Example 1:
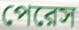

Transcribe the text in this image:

পেরেস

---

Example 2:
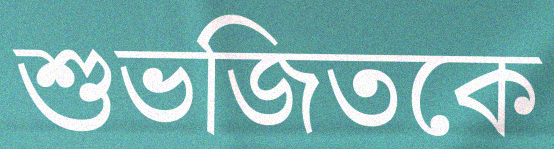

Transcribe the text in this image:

শুভজিতকে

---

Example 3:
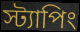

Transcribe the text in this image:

স্ট্যাপিং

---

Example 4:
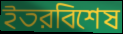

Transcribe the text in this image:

ইতরবিশেষ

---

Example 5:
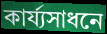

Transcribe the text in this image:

কার্য্যসাধনে